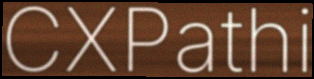
CXPathi